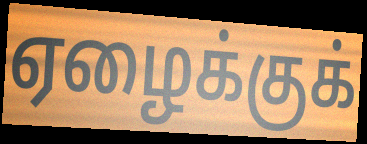
ஏழைக்குக்